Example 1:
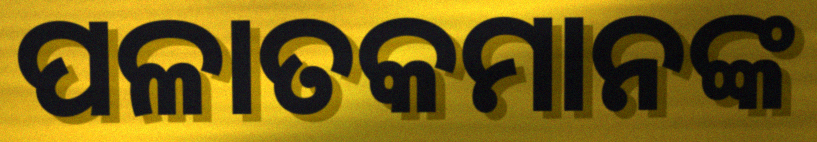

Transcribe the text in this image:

ପଳାତକମାନଙ୍କ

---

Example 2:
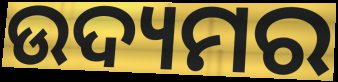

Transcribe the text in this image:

ଉଦ୍ୟମର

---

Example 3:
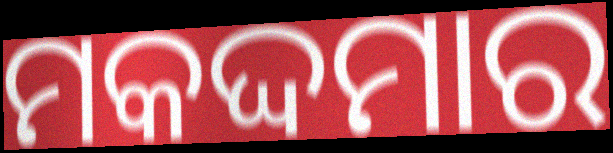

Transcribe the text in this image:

ମକଦ୍ଦମାର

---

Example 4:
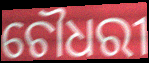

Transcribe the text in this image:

ଚୌଧରୀ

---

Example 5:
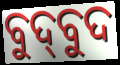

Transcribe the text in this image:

ବୁଦ୍‍ବୁଦ